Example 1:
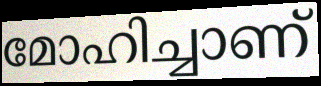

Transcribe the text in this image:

മോഹിച്ചാണ്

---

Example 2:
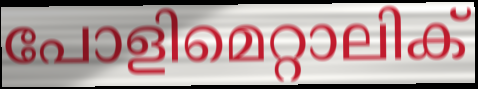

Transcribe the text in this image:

പോളിമെറ്റാലിക്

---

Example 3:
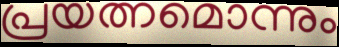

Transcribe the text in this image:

പ്രയത്നമൊന്നും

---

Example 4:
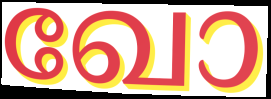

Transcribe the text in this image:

ഖോ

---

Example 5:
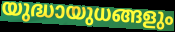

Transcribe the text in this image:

യുദ്ധായുധങ്ങളും